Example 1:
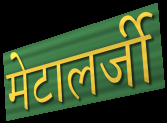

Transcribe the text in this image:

मेटालर्जी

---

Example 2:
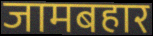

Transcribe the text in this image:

जामबहार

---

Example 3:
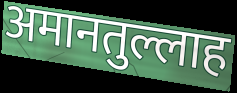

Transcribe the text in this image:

अमानतुल्लाह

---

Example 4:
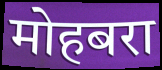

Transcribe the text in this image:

मोहबरा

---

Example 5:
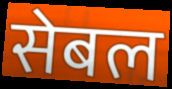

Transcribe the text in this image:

सेबल